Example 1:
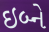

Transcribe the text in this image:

ઇબ્ને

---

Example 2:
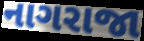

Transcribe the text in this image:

નાગરાજા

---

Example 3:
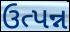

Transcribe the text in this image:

ઉત્પન્ન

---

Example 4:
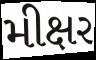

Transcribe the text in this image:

મીક્ષર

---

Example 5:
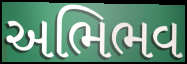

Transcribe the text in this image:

અભિભવ